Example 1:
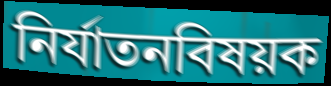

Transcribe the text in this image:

নির্যাতনবিষয়ক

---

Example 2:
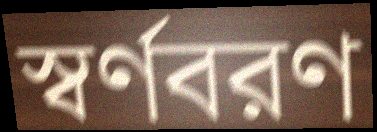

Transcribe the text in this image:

স্বর্ণবরণ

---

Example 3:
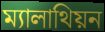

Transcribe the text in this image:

ম্যালাথিয়ন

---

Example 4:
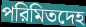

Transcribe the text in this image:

পরিমিতদেহ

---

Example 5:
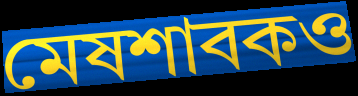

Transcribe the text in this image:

মেষশাবকও